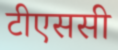
टीएससी